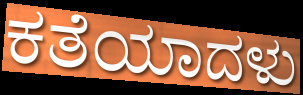
ಕತೆಯಾದಳು